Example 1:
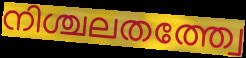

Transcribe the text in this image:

നിശ്ചലതത്ത്വേ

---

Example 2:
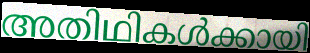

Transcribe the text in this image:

അതിഥികൾക്കായി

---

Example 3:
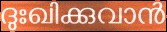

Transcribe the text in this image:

ദുഃഖിക്കുവാൻ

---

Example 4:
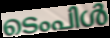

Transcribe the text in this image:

ടെംപിൾ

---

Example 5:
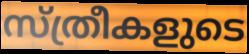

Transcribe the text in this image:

സ്ത്രീകളുടെ